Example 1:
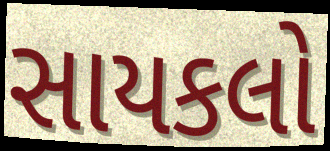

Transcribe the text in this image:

સાયકલો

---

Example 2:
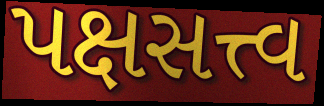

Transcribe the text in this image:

પક્ષસત્ત્વ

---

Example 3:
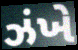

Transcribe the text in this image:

ઝંખે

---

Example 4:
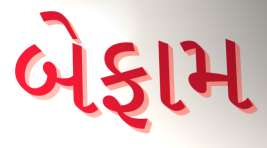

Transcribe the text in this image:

બેફામ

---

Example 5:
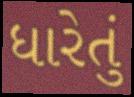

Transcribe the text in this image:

ધારેતું